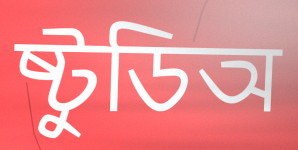
ষ্টুডিঅ